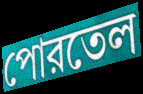
পোরতেল